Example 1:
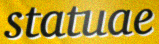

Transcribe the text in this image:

statuae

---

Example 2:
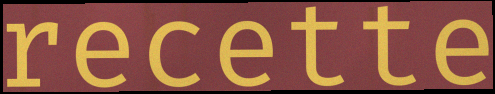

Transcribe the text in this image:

recette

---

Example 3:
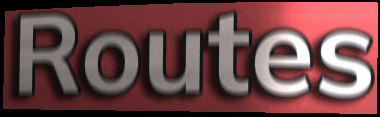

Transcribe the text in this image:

Routes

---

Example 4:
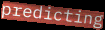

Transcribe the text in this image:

predicting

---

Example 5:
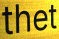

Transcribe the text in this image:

thet